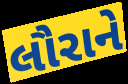
લૌરાને